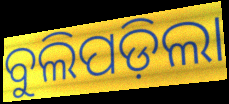
ବୁଲିପଡ଼ିଲା